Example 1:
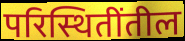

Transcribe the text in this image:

परिस्थितींतील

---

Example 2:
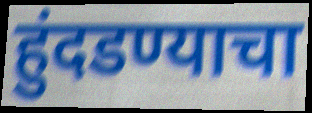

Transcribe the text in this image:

हुंदडण्याचा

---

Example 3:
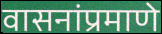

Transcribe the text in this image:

वासनांप्रमाणे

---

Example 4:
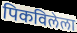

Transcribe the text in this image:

पिकविलेला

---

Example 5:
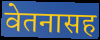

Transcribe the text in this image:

वेतनासह